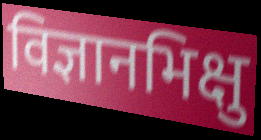
विज्ञानभिक्षु